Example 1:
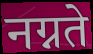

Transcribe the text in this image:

नग्नते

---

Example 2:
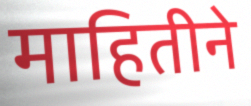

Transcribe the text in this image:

माहितीने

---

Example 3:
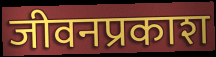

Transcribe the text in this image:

जीवनप्रकाश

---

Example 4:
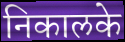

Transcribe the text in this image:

निकालके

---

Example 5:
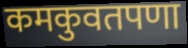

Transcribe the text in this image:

कमकुवतपणा